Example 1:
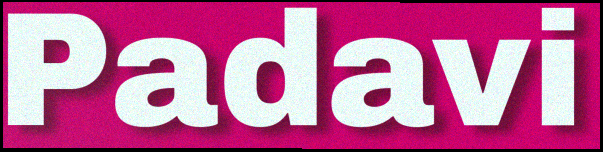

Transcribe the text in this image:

Padavi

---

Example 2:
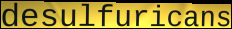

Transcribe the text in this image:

desulfuricans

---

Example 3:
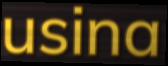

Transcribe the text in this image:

usina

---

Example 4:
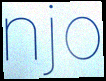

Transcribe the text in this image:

njo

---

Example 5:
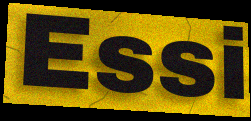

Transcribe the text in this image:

Essi